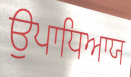
ਉਪਾਧਿਆਯ